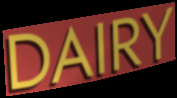
DAIRY